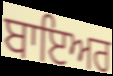
ਬਾਇਅਰ